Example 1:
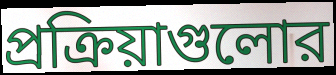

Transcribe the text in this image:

প্রক্রিয়াগুলোর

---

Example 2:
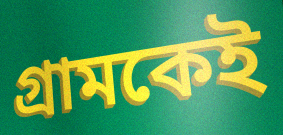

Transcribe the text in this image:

গ্রামকেই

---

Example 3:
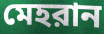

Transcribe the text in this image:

মেহরান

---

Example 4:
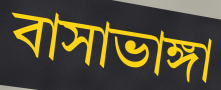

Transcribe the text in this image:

বাসাভাঙ্গা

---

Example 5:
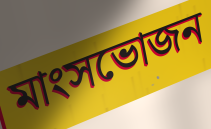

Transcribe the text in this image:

মাংসভোজন